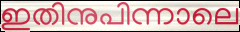
ഇതിനുപിന്നാലെ